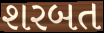
શરબત